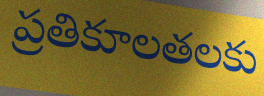
ప్రతికూలతలకు